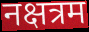
नक्षत्रम